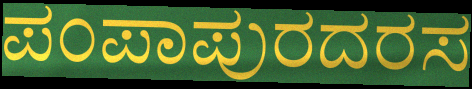
ಪಂಪಾಪುರದರಸ